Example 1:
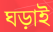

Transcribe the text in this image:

ঘড়াই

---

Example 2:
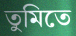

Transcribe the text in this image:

তুমিতে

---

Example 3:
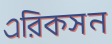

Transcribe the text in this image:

এরিকসন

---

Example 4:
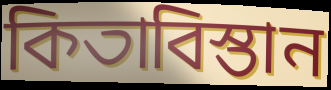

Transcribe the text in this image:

কিতাবিস্তান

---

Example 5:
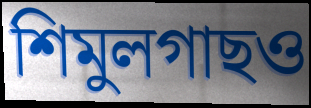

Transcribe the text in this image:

শিমুলগাছও